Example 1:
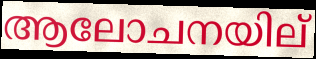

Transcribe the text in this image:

ആലോചനയില്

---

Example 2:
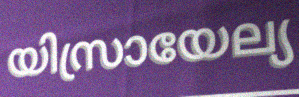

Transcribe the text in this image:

യിസ്രായേല്യ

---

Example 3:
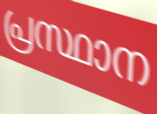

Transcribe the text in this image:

പ്രസ്ഥാന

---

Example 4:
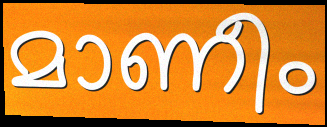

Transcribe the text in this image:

മാണീം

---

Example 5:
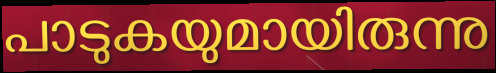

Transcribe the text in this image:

പാടുകയുമായിരുന്നു